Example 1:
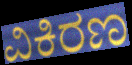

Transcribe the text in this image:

ವಿಕಿರಣ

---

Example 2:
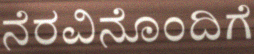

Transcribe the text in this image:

ನೆರವಿನೊಂದಿಗೆ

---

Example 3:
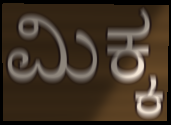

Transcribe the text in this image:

ಮಿಕ್ಕ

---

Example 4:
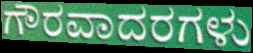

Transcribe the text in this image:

ಗೌರವಾದರಗಳು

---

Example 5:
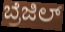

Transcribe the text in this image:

ಬ್ರೆಜಿಲ್